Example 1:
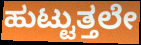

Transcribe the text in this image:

ಹುಟ್ಟುತ್ತಲೇ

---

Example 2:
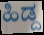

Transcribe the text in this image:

ಹಿಡ್ದ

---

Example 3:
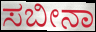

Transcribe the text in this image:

ಸಬೀನಾ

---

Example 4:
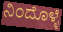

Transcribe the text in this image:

ನಿಂದೊಳ್ಳೆ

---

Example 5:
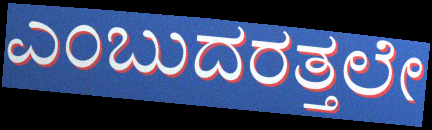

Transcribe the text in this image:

ಎಂಬುದರತ್ತಲೇ